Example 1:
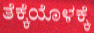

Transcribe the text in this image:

ತೆಕ್ಕೆಯೊಳಕ್ಕೆ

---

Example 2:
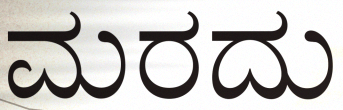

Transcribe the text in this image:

ಮರದು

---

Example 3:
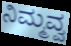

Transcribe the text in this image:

ನಿಮ್ಮವ್ವ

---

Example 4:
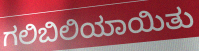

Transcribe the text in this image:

ಗಲಿಬಿಲಿಯಾಯಿತು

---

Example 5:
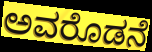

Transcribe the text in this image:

ಅವರೊಡನೆ